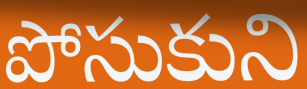
పోసుకుని